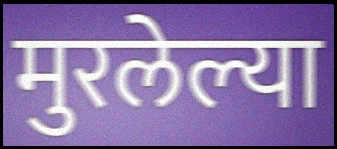
मुरलेल्या